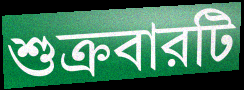
শুক্রবারটি